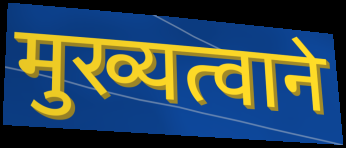
मुख्यत्वाने